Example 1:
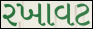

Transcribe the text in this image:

રખાવટ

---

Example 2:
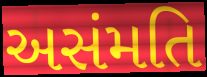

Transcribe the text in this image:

અસંમતિ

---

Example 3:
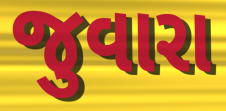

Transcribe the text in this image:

જુવારા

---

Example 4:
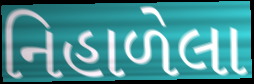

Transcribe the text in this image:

નિહાળેલા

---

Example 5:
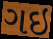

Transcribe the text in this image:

ગઇ